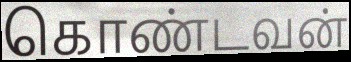
கொண்டவன்